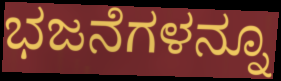
ಭಜನೆಗಳನ್ನೂ